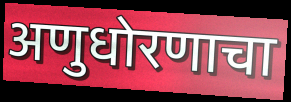
अणुधोरणाचा